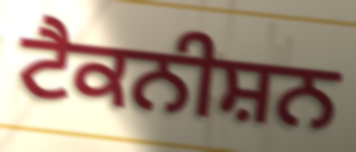
ਟੈਕਨੀਸ਼ਨ